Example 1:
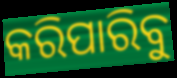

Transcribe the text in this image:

କରିପାରିବୁ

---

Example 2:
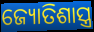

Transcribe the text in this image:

ଜ୍ୟୋତିଶାସ୍ତ୍ର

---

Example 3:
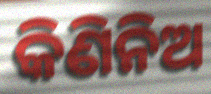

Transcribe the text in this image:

କିଣିନିଅ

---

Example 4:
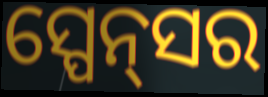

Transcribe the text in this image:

ସ୍ପେନ୍‌ସର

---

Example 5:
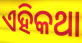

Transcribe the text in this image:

ଏହିକଥା